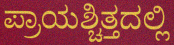
ಪ್ರಾಯಶ್ಚಿತ್ತದಲ್ಲಿ